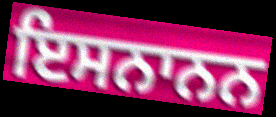
ਇਸਨਾਨਨ